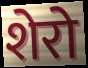
शेरो